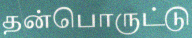
தன்பொருட்டு